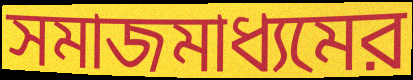
সমাজমাধ্যমের